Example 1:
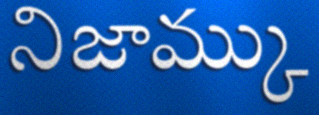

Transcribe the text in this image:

నిజామ్కు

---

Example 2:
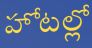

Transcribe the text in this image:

హోటల్లో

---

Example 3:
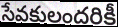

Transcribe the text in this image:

సేవకులందరికీ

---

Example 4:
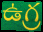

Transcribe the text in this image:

ఉగ్ర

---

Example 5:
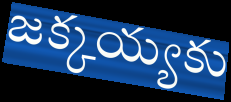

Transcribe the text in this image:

జక్కయ్యకు